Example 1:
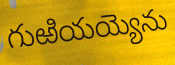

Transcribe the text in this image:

గుఱియయ్యెను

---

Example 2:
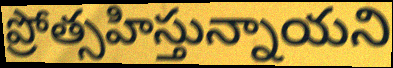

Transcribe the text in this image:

ప్రోత్సహిస్తున్నాయని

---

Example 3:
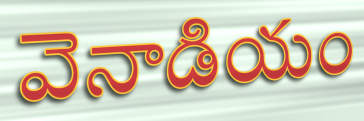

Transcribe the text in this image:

వెనాడియం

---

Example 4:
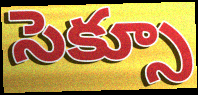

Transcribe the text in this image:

సెక్సూ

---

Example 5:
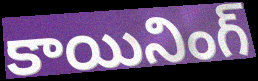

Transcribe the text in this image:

కాయినింగ్